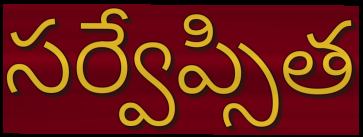
సర్వేప్సిత